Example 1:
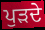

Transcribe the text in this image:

ਪੁੜਦੇ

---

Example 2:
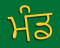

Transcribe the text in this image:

ਮੰਡ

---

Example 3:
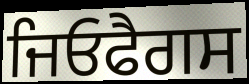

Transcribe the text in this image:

ਜਿਓਫੈਗਸ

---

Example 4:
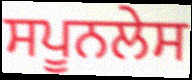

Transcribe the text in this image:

ਸਪੂਨਲੇਸ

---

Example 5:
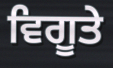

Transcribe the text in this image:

ਵਿਗੂਤੇ